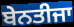
ਬੇਨਤੀਜਾ